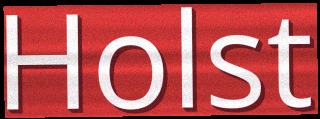
Holst